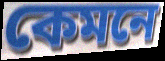
কেমনে